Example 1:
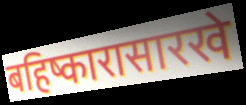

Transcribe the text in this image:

बहिष्कारासारखे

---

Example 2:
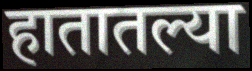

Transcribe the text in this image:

हातातल्या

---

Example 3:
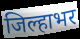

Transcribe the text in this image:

जिल्हाभर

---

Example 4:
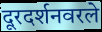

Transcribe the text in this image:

दूरदर्शनवरले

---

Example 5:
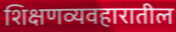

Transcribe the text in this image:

शिक्षणव्यवहारातील